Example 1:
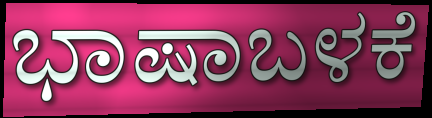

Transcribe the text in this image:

ಭಾಷಾಬಳಕೆ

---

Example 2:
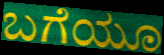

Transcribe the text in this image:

ಬಗೆಯೂ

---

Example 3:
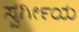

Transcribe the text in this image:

ಸ್ವರ್ಗೀಯ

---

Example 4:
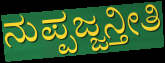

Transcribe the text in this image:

ನುಪ್ಪಜ್ಜನ್ತೀತಿ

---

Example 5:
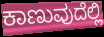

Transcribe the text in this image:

ಕಾಣುವುದೆಲ್ಲಿ